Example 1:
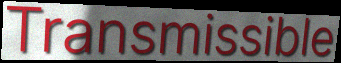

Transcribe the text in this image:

Transmissible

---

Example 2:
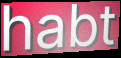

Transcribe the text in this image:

habt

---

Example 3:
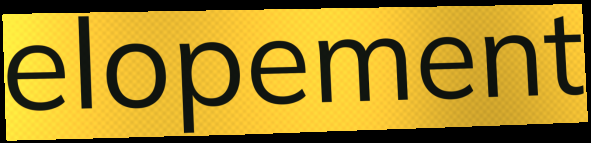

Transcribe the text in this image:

elopement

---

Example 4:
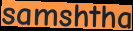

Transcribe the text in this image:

samshtha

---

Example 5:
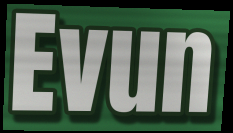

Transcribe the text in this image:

Evun